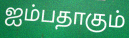
ஐம்பதாகும்